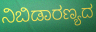
ನಿಬಿಡಾರಣ್ಯದ